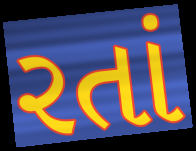
રતાં